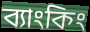
ব্যাংকিং